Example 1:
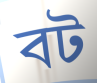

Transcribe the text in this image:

বট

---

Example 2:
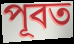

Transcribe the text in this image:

পূবত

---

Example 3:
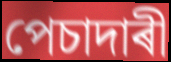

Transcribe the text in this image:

পেচাদাৰী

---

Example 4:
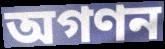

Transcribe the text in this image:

অগণন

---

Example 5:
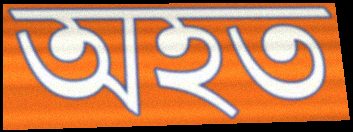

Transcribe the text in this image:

অহত